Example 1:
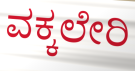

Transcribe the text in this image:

ವಕ್ಕಲೇರಿ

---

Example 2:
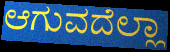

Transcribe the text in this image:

ಆಗುವದೆಲ್ಲಾ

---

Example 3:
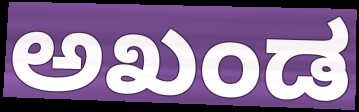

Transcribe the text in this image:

ಅಖಂಡ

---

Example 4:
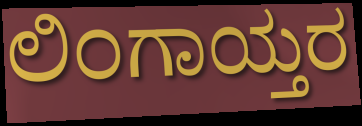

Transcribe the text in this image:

ಲಿಂಗಾಯ್ತರ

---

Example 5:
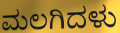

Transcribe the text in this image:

ಮಲಗಿದಳು